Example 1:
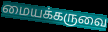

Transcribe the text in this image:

மையக்கருவை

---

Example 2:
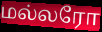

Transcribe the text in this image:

மல்லரோ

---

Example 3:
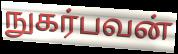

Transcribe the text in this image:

நுகர்பவன்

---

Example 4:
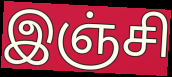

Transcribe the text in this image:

இஞ்சி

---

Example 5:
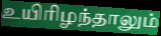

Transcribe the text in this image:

உயிரிழந்தாலும்